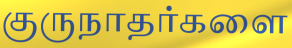
குருநாதர்களை